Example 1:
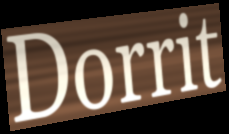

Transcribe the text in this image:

Dorrit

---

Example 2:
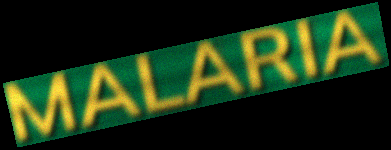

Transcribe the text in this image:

MALARIA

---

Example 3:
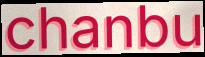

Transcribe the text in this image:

chanbu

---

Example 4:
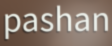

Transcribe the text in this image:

pashan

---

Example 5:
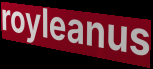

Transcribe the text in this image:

royleanus